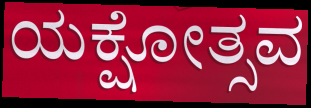
ಯಕ್ಷೋತ್ಸವ